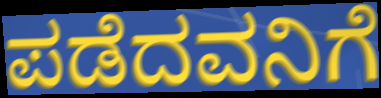
ಪಡೆದವನಿಗೆ